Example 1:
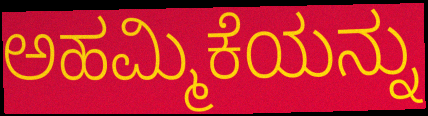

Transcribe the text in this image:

ಅಹಮ್ಮಿಕೆಯನ್ನು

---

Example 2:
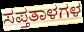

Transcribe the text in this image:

ಸಪ್ತತಾಳಗಳ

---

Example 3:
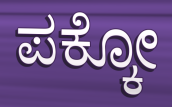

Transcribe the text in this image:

ಪಕ್ಕೋ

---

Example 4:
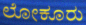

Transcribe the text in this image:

ಲೋಕೂರು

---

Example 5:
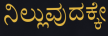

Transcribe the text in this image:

ನಿಲ್ಲುವುದಕ್ಕೇ